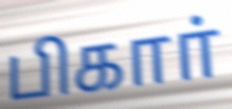
பிகார்